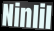
Ninlil